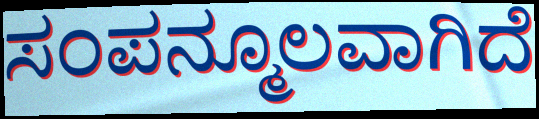
ಸಂಪನ್ಮೂಲವಾಗಿದೆ